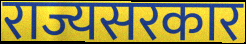
राज्यसरकार